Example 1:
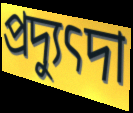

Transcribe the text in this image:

প্রদ্যুৎদা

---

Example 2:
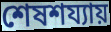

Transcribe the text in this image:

শেষশয্যায়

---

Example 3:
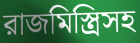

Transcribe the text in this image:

রাজমিস্ত্রিসহ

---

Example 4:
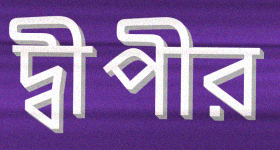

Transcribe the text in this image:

দ্বীপীর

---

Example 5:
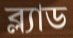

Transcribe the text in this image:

ব্ল্যাড